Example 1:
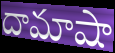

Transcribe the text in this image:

దామాషా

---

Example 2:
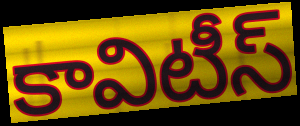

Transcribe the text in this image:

కావిటీస్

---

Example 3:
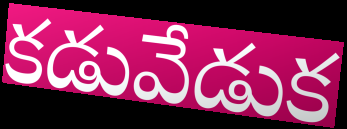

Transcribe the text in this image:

కడువేడుక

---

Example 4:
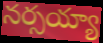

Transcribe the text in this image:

నర్సయ్యా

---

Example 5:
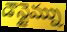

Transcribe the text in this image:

డౌన్టైమ్ను